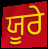
ਯੂਰੇ